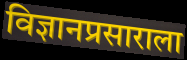
विज्ञानप्रसाराला